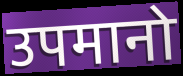
उपमानो